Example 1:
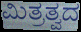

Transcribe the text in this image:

ಮಿತ್ರತ್ವದ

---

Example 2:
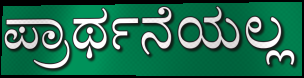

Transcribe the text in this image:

ಪ್ರಾರ್ಥನೆಯಲ್ಲ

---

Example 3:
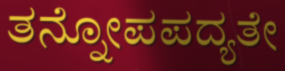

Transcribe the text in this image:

ತನ್ನೋಪಪದ್ಯತೇ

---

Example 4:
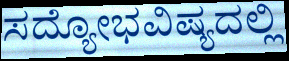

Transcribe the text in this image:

ಸದ್ಯೋಭವಿಷ್ಯದಲ್ಲಿ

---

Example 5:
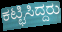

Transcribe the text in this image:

ಕಟ್ಟಿಸಿದ್ದರು